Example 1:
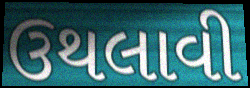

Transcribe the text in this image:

ઉથલાવી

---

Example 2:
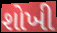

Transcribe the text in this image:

શોખી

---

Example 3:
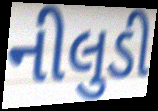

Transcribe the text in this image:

નીલુડી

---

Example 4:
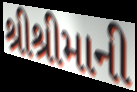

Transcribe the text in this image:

શ્રીશ્રીમાની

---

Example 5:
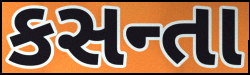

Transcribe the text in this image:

કસન્તા